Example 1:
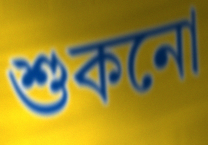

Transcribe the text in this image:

শুকনো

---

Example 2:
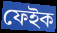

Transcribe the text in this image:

ফেইক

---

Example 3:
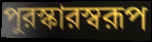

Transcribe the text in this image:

পুরস্কারস্বরূপ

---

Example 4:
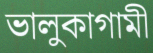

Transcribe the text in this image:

ভালুকাগামী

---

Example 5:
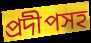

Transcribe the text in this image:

প্রদীপসহ